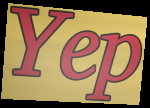
Yep